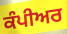
ਕੰਪੀਅਰ